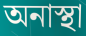
অনাস্থা